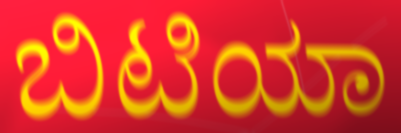
ಬಿಟಿಯಾ